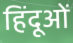
हिंदूओं